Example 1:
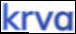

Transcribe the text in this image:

krva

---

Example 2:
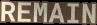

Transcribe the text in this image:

REMAIN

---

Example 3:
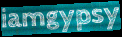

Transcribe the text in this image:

iamgypsy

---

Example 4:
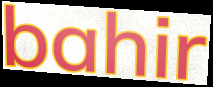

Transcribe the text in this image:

bahir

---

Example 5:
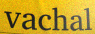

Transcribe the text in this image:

vachal